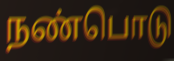
நண்பொடு